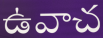
ఉవాచ